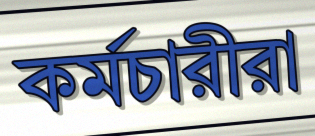
কর্মচারীরা